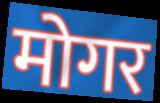
मोगर